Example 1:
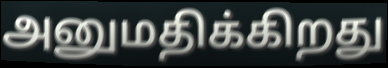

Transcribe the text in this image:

அனுமதிக்கிறது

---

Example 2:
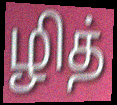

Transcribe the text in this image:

ழித்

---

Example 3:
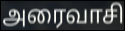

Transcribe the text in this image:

அரைவாசி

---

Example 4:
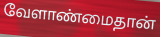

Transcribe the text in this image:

வேளாண்மைதான்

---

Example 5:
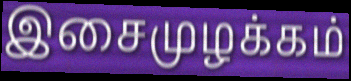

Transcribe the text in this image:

இசைமுழக்கம்